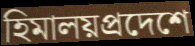
হিমালয়প্রদেশে